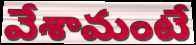
వేశామంటే